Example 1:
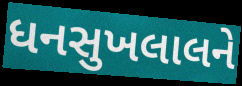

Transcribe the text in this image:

ધનસુખલાલને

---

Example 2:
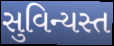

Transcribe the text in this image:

સુવિન્યસ્ત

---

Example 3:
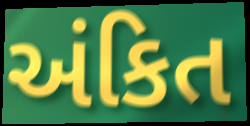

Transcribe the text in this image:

અંકિત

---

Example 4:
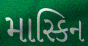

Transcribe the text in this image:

માસ્કિન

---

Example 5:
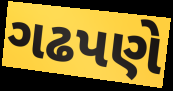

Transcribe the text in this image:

ગઢપણે